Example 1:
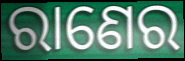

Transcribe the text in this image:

ରାଣେର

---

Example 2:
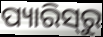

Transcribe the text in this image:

ପ୍ୟାରିସ୍‌ରୁ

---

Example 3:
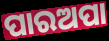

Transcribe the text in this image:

ପାରଅପା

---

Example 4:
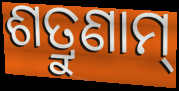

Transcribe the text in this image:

ଶତ୍ରୁଣାମ୍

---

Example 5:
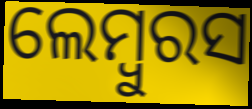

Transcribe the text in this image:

ଲେମ୍ବୁରସ